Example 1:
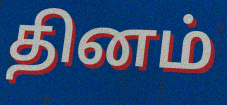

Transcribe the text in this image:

தினம்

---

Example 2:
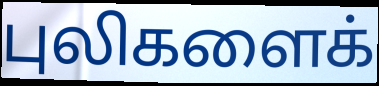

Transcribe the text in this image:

புலிகளைக்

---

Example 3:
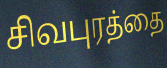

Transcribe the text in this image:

சிவபுரத்தை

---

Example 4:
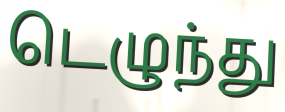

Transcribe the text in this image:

டெழுந்து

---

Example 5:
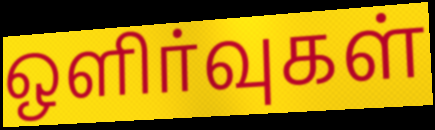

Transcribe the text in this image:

ஒளிர்வுகள்